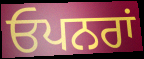
ਓਪਨਰਾਂ